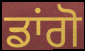
ਡਾਂਗੋ